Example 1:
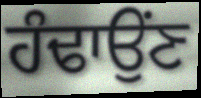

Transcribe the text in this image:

ਹੰਢਾਉਂਣ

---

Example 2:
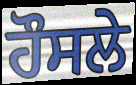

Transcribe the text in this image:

ਹੌਸਲੇ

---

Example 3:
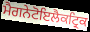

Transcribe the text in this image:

ਮੈਗਨੇਟੋਇਲੈਕਟ੍ਰਿਕ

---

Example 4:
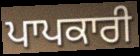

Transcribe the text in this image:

ਪਾਪਕਾਰੀ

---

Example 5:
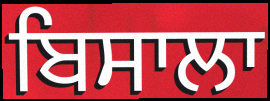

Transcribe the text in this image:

ਬਿਸਾਲਾ